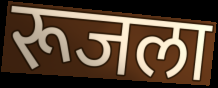
रूजला